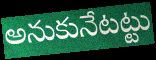
అనుకునేటట్టు